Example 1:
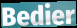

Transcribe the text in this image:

Bedier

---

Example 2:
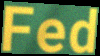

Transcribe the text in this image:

Fed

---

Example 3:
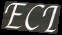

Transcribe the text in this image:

ECI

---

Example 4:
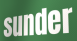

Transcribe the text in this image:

sunder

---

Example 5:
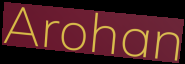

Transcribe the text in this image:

Arohan